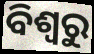
ବିଶ୍ଵରୁ